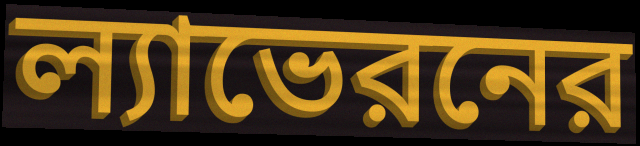
ল্যাভেরনের